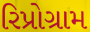
રિપ્રોગ્રામ